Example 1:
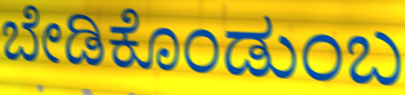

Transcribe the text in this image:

ಬೇಡಿಕೊಂಡುಂಬ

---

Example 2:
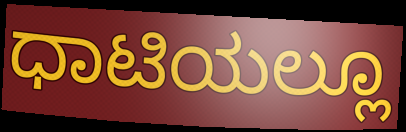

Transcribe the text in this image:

ಧಾಟಿಯಲ್ಲೂ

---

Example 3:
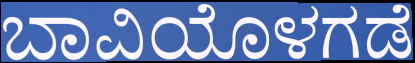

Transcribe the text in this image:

ಬಾವಿಯೊಳಗಡೆ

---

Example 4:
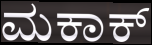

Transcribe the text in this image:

ಮಕಾಕ್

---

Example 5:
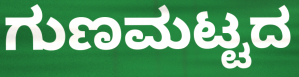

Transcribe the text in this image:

ಗುಣಮಟ್ಟದ